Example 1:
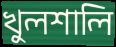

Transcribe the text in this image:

খুলশালি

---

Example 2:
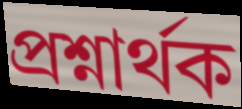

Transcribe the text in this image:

প্ৰশ্নাৰ্থক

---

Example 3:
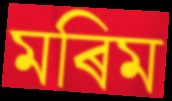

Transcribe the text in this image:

মৰিম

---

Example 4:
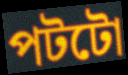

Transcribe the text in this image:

পটটো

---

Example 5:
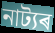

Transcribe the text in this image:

নাট্যৰ